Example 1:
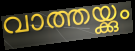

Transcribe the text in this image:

വാത്തയ്ക്കും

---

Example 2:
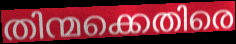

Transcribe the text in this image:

തിന്മക്കെതിരെ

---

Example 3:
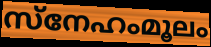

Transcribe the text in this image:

സ്നേഹംമൂലം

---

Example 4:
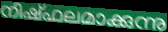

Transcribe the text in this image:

നിഷ്ഫലമാക്കുന്നു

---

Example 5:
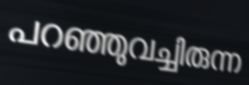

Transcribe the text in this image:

പറഞ്ഞുവച്ചിരുന്ന